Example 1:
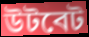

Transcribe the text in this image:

উটবেট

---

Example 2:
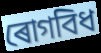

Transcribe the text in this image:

ৰোগবিধ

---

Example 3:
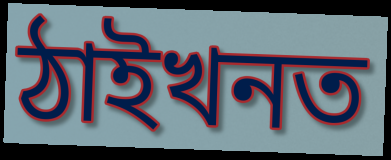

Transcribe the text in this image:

ঠাইখনত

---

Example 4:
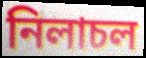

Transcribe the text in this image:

নিলাচল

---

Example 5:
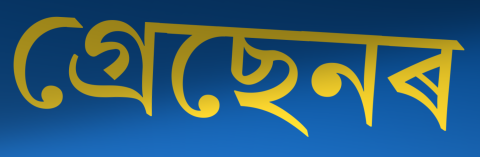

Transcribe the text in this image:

গ্ৰেছেনৰ